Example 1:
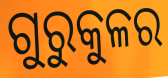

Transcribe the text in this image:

ଗୁରୁକୁଳର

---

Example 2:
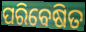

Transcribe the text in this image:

ପରିବେଷିତ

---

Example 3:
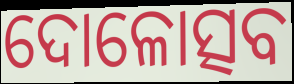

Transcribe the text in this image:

ଦୋଳୋତ୍ସବ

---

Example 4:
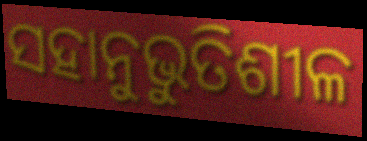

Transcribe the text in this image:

ସହାନୁଭୁତିଶୀଳ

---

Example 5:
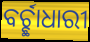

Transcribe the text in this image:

ବର୍ଚ୍ଛାଧାରୀ